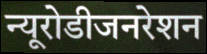
न्यूरोडीजनरेशन